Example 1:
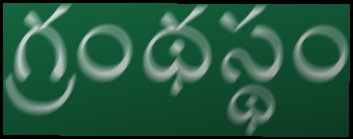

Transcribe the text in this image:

గ్రంథస్థం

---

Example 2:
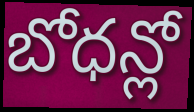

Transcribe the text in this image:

బోధన్లో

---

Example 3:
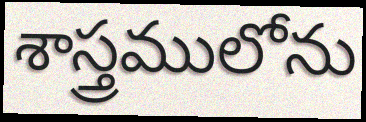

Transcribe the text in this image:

శాస్త్రములోను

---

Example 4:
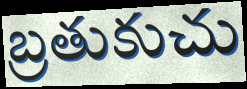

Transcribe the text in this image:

బ్రతుకుచు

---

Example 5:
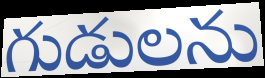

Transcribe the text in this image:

గుడులను